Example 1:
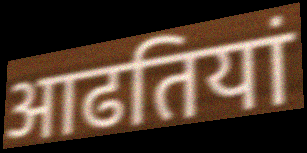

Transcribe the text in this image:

आढतियां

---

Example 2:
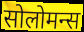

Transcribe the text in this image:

सोलोमन्स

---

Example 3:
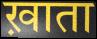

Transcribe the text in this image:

ख़ाता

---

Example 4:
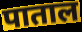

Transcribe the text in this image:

पाताल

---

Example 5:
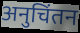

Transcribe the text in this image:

अनुचिंतन